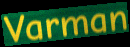
Varman